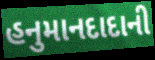
હનુમાનદાદાની